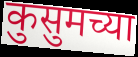
कुसुमच्या